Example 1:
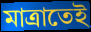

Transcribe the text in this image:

মাত্রাতেই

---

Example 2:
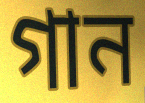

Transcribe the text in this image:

গান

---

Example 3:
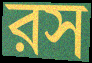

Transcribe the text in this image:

রস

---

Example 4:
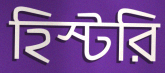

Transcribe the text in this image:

হিস্টরি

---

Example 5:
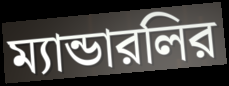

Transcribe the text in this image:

ম্যান্ডারলির